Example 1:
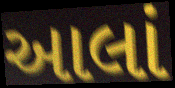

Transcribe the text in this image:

આલાં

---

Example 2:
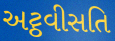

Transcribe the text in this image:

અટ્ઠવીસતિ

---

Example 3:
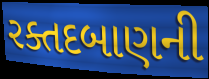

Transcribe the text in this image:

રક્તદબાણની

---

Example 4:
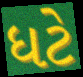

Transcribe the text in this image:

ધટે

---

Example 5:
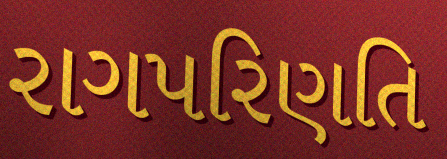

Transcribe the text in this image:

રાગપરિણતિ